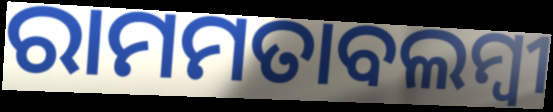
ରାମମତାବଲମ୍ବୀ